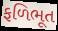
ફળિભૂત